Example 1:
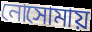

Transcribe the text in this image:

নোসোমায়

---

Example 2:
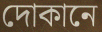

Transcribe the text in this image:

দোকানে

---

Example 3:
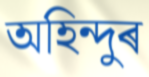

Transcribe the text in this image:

অহিন্দুৰ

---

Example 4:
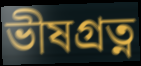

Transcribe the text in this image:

ভীষগ্ৰত্ন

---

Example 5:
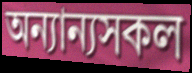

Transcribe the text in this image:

অন্যান্যসকল